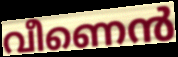
വീണെൻ